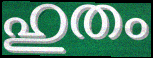
ഹുതം